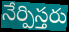
నేర్పిస్తరు